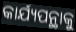
କାର୍ଯ୍ୟପନ୍ଥାକୁ